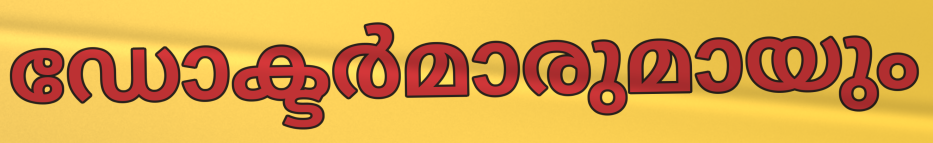
ഡോക്ടർമാരുമായും